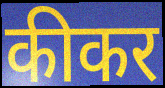
कीकर